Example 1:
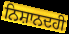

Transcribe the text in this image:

ਨਿਸ਼ਾਨਦਹੀ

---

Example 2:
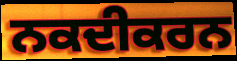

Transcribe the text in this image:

ਨਕਦੀਕਰਨ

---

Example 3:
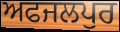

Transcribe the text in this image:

ਅਫਜਲਪੁਰ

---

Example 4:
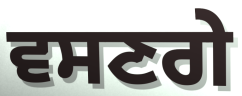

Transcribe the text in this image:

ਵਸਣਗੇ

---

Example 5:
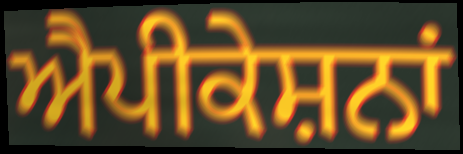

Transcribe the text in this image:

ਐਪੀਕੇਸ਼ਨਾਂ